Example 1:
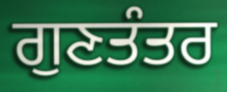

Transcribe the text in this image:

ਗੁਣਤੰਤਰ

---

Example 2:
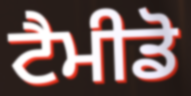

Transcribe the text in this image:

ਟੈਮੀਡੋ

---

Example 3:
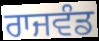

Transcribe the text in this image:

ਰਾਜਵੰਡ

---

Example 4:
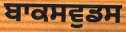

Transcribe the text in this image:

ਬਾਕਸਵੁਡਸ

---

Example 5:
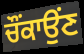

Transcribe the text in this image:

ਚੌਂਕਾਉਂਣ